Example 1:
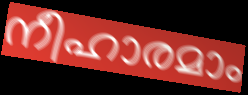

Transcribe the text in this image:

നീഹാരമാം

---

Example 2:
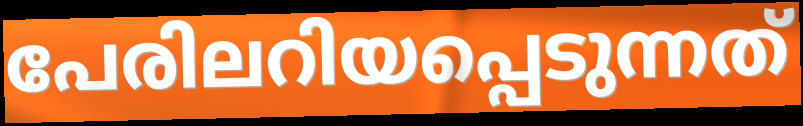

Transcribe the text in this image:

പേരിലറിയപ്പെടുന്നത്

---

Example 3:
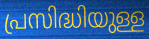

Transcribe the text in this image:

പ്രസിദ്ധിയുള്ള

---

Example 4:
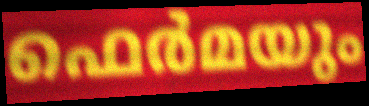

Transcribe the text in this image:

ഫെർമയും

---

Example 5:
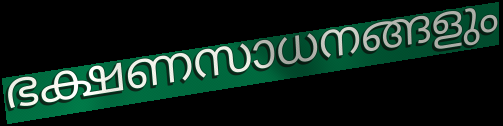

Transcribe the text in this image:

ഭക്ഷണസാധനങ്ങളും